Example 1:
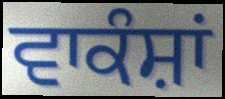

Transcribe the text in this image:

ਵਾਕੰਸ਼ਾਂ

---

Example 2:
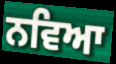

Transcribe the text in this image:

ਨਵਿਆ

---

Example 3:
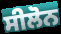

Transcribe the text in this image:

ਸੀਲੋਨ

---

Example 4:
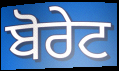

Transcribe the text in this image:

ਬੋਰੇਟ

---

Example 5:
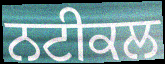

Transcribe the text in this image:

ਨਟੀਕਲ